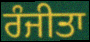
ਰੰਜੀਤਾ